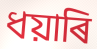
ধয়াৰি